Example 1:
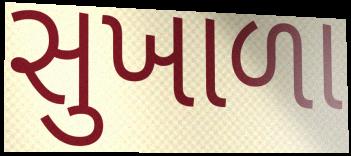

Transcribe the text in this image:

સુખાળા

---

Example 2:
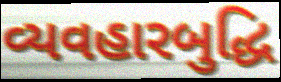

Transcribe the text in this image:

વ્યવહારબુદ્ધિ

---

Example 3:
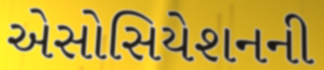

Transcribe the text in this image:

એસોસિયેશનની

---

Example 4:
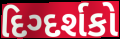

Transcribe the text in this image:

દિગ્દર્શકો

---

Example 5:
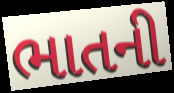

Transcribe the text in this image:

ભાતની